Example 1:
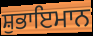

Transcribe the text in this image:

ਸ਼ੁਭਾਇਮਾਨ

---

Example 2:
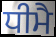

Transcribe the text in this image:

ਧੀਮੈ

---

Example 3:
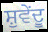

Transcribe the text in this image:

ਸ਼ੁਵੇਂਦੂ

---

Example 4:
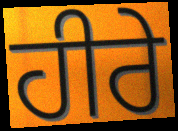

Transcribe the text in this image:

ਹੀਰੇ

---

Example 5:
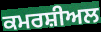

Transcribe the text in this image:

ਕਮਰਸ਼ੀਅਲ